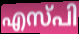
എസ്പി